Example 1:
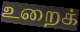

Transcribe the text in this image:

உறைக்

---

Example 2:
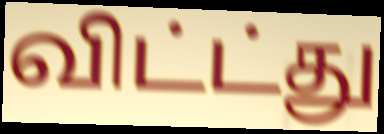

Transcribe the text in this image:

விட்ட்து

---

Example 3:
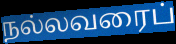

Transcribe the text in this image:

நல்லவரைப்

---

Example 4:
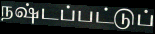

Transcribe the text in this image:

நஷ்டப்பட்டுப்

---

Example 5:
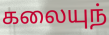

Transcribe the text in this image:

கலையுந்